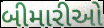
બીમારીઓ